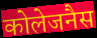
कोलेजनैस